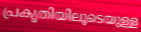
പ്രകൃതിയിലൂടെയുള്ള